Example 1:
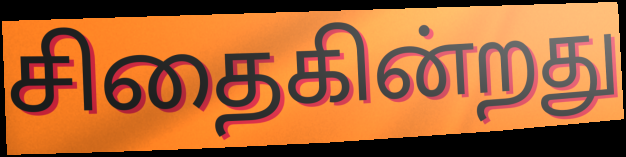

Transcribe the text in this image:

சிதைகின்றது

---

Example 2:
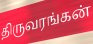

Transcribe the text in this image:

திருவரங்கன்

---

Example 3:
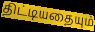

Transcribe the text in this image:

திட்டியதையும்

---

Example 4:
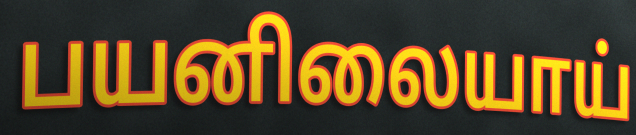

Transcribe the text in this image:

பயனிலையாய்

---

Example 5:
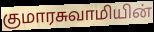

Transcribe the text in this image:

குமாரசுவாமியின்